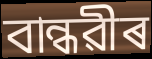
বান্ধৱীৰ